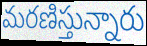
మరణిస్తున్నారు